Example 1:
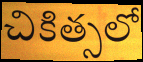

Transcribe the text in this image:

చికిత్సలో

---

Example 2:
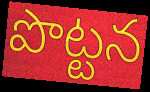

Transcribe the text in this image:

పొట్టన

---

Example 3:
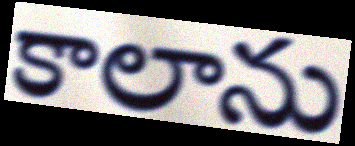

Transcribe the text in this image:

కాలాను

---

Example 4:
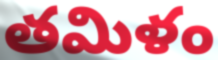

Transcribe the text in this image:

తమిళం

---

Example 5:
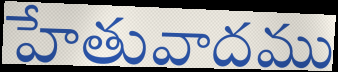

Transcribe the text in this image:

హేతువాదము